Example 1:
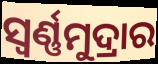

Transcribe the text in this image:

ସ୍ୱର୍ଣ୍ଣମୁଦ୍ରାର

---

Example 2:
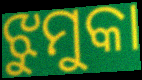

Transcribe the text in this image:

ଝୁମୁକା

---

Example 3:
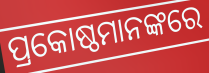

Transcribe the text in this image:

ପ୍ରକୋଷ୍ଠମାନଙ୍କରେ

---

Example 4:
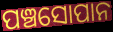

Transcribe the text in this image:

ପଞ୍ଚସୋପାନ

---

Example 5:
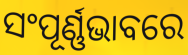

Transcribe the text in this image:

ସଂପୂର୍ଣ୍ଣଭାବରେ